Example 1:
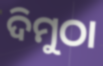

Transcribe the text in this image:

ଦିମୁଠା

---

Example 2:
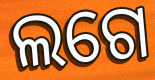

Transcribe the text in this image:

ଲଗେ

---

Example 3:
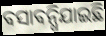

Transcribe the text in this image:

ବସାବନ୍ଧିଯାଇଛି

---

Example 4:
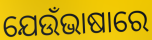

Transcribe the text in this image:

ଯେଉଁଭାଷାରେ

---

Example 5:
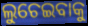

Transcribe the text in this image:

ଲୁଚେଇବାକୁ